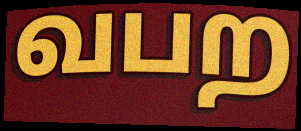
வபற